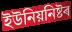
ইউনিয়নিষ্টৰ